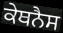
ਕੇਥਨੈਸ